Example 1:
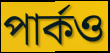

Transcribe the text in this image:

পার্কও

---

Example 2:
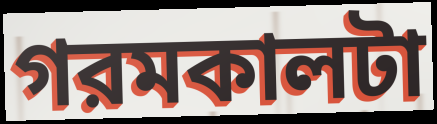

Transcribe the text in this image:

গরমকালটা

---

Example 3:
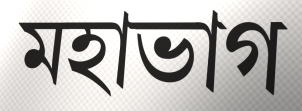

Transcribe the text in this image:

মহাভাগ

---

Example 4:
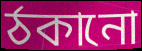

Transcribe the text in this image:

ঠকানো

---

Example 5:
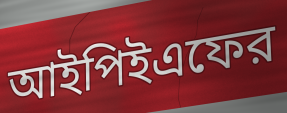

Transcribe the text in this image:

আইপিইএফের